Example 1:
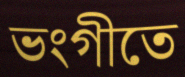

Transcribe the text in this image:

ভংগীতে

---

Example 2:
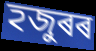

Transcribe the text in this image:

হজুৰৰ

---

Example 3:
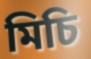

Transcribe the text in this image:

মিচি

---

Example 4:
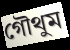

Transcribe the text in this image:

গৌথুম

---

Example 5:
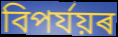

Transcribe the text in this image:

বিপৰ্যয়ৰ